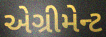
એગ્રીમેન્ટ